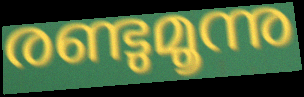
രണ്ടുമൂന്നു